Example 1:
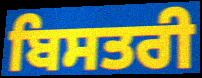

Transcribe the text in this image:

ਬਿਸਤਰੀ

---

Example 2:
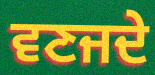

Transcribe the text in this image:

ਵਣਜਦੇ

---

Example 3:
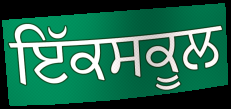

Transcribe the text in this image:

ਇੱਕਸਕੂਲ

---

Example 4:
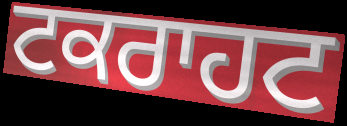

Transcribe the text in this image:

ਟਕਰਾਹਟ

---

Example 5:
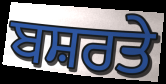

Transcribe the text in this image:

ਬਸ਼ਰਤੇ